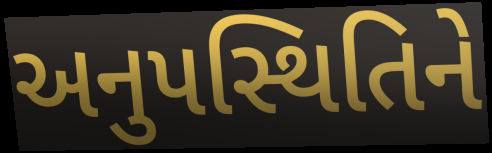
અનુપસ્થિતિને